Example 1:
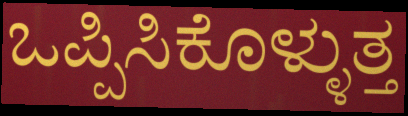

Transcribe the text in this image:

ಒಪ್ಪಿಸಿಕೊಳ್ಳುತ್ತ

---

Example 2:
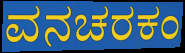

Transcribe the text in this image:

ವನಚರಕಂ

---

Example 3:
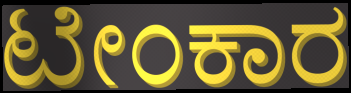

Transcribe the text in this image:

ಟೇಂಕಾರ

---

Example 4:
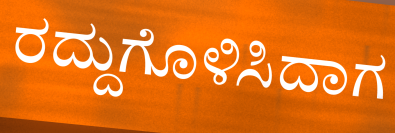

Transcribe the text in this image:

ರದ್ದುಗೊಳಿಸಿದಾಗ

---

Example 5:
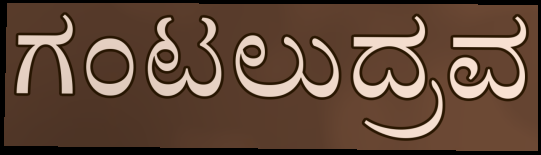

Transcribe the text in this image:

ಗಂಟಲುದ್ರವ